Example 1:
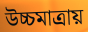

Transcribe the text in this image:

উচ্চমাত্রায়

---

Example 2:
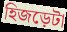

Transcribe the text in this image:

হিজড়েটা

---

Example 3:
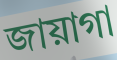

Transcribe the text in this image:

জায়াগা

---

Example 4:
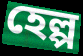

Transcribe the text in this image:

হেল্প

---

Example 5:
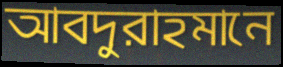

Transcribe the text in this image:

আবদুরাহমানে